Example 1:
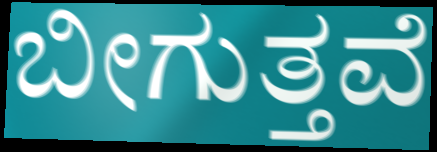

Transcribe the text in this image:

ಬೀಗುತ್ತವೆ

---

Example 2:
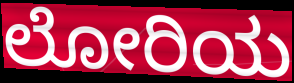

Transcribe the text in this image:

ಲೋರಿಯ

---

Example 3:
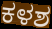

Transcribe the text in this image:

ಕಳಶ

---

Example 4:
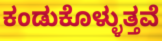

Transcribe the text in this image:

ಕಂಡುಕೊಳ್ಳುತ್ತವೆ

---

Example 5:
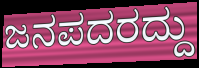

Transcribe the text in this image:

ಜನಪದರದ್ದು